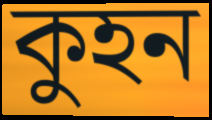
কুহন